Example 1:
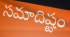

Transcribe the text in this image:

సమాదిష్టం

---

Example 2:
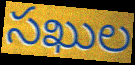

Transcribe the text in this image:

సఖుల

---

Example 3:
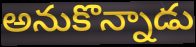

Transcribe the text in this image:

అనుకొన్నాడు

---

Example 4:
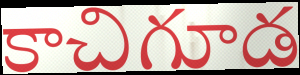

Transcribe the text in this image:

కాచిగూడ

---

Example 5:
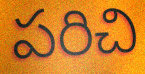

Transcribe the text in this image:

పరిచి